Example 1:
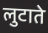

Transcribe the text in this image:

लुटाते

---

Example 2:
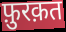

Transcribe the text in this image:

फ़ुरक़त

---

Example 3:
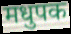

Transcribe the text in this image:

मधुपक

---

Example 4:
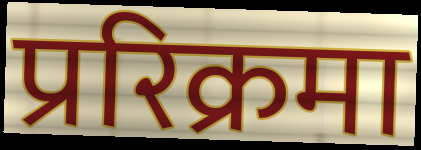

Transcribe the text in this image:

प्ररिक्रमा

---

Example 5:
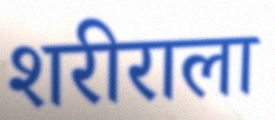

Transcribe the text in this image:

शरीराला